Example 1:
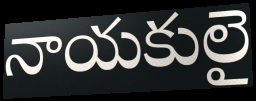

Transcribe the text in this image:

నాయకులై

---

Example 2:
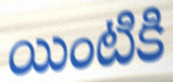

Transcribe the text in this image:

యింటికి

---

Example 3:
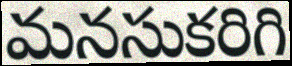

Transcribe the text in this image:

మనసుకరిగి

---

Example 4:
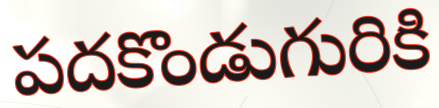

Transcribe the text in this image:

పదకొండుగురికి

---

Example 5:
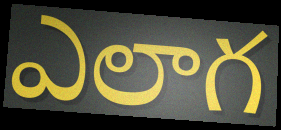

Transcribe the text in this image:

ఎలాగ